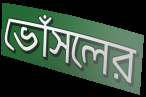
ভোঁসলের